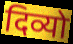
दिव्यो